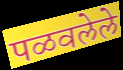
पळवलेले